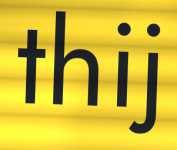
thij